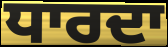
ਧਾਰਦਾ